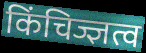
किंचिज्ज्ञत्व